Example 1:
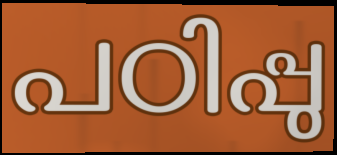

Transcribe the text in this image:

പഠിപ്പു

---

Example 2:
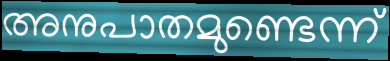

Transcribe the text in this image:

അനുപാതമുണ്ടെന്ന്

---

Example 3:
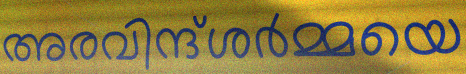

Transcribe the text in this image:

അരവിന്ദ്ശർമ്മയെ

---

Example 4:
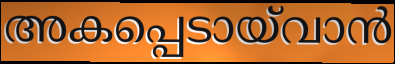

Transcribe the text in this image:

അകപ്പെടായ്‌വാൻ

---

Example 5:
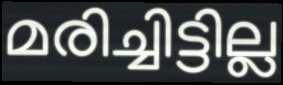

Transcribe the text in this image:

മരിച്ചിട്ടില്ല